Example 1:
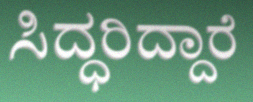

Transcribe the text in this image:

ಸಿದ್ಧರಿದ್ದಾರೆ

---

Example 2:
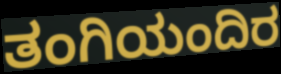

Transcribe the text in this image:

ತಂಗಿಯಂದಿರ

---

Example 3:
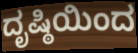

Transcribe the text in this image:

ದೃಷ್ಠಿಯಿಂದ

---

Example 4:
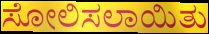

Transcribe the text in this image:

ಸೋಲಿಸಲಾಯಿತು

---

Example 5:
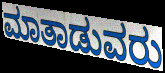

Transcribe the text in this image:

ಮಾತಾಡುವರು